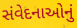
સંવેદનાઓનું